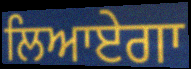
ਲਿਆਏਗਾ